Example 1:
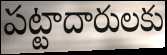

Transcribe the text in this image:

పట్టాదారులకు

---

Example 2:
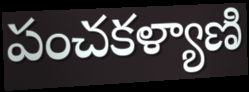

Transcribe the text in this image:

పంచకళ్యాణి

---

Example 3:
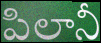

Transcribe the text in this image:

పిలానీ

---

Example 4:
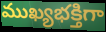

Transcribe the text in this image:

ముఖ్యభక్తిగా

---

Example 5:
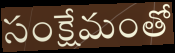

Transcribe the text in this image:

సంక్షేమంతో